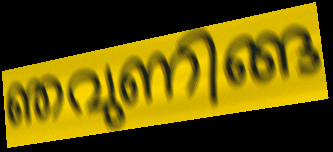
ഞവുണിങ്ങ